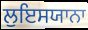
ਲੁਇਸਯਾਨਾ